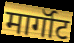
मार्गॉट